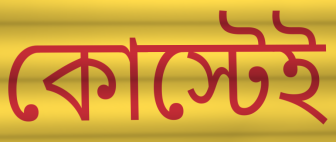
কোস্টেই